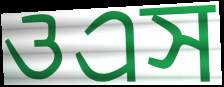
ওএস